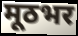
मूठभर